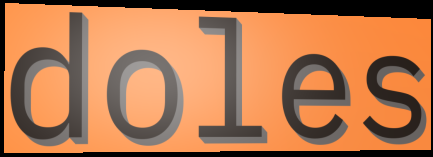
doles